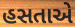
હસતાએ